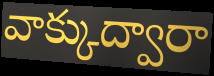
వాక్కుద్వారా